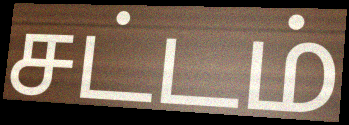
சட்டம்